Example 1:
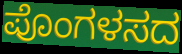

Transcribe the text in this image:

ಪೊಂಗಳಸದ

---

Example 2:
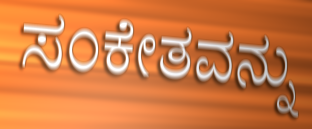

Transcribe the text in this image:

ಸಂಕೇತವನ್ನು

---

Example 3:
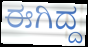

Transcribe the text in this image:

ಈಗಿದ್ದ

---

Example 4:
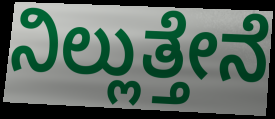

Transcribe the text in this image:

ನಿಲ್ಲುತ್ತೇನೆ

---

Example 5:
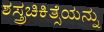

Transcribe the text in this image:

ಶಸ್ತ್ರಚಿಕಿತ್ಸೆಯನ್ನು